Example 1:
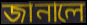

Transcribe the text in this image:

জানালে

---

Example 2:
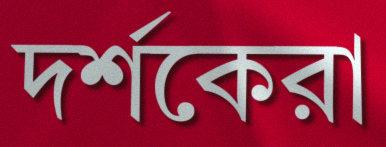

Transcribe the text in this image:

দর্শকেরা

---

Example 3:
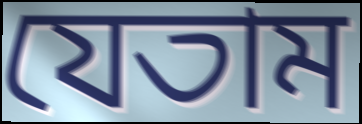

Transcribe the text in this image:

যেতাম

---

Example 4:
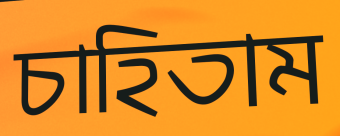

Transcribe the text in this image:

চাহিতাম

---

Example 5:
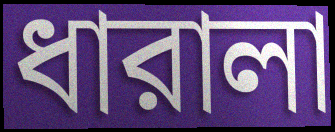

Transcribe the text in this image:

ধারালা